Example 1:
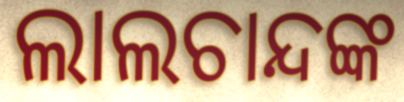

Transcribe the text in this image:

ଲାଲଚାନ୍ଦଙ୍କ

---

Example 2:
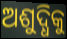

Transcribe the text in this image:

ଅଶୁଦ୍ଧିକୁ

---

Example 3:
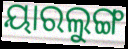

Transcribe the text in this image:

ୟାରଲୁଙ୍ଗ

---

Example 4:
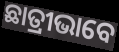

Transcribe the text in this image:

ଛାତ୍ରୀଭାବେ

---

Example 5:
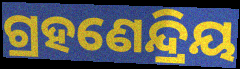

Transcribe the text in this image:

ଗ୍ରହଣେନ୍ଦ୍ରିୟ